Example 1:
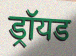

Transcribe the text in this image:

ड्रॉयड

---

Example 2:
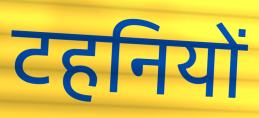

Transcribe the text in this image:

टहनियों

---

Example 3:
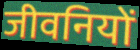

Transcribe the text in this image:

जीवनियों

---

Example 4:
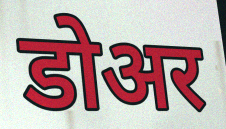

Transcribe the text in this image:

डोअर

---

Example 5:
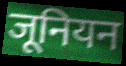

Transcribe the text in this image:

जूनियन